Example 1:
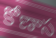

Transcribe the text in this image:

కోణాస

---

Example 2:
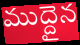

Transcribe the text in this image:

ముద్దైన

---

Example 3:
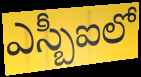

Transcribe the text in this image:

ఎస్బీఐలో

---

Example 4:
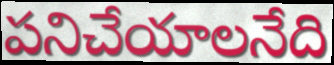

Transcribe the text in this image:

పనిచేయాలనేది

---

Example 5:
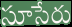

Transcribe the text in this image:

సూసేరు